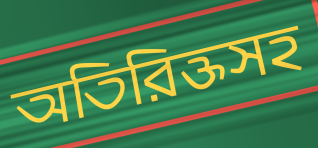
অতিরিক্তসহ